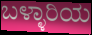
ಬಳ್ಳಾರಿಯ